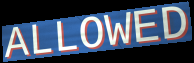
ALLOWED